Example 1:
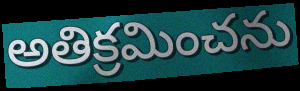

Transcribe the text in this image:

అతిక్రమించను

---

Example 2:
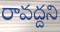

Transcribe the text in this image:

రావద్దని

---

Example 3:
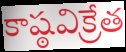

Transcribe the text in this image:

కాష్ఠవిక్రేత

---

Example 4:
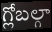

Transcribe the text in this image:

గ్లోబల్గా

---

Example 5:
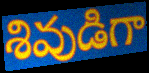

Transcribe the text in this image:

శివుడిగా